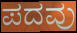
ಪದವು